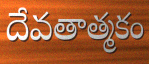
దేవతాత్మకం